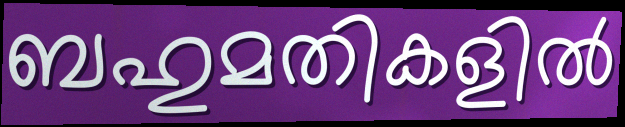
ബഹുമതികളിൽ